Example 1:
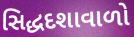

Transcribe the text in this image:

સિદ્ધદશાવાળો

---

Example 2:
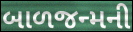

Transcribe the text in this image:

બાળજન્મની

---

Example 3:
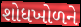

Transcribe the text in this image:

શોધખોળને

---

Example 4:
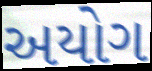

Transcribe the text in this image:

અયોગ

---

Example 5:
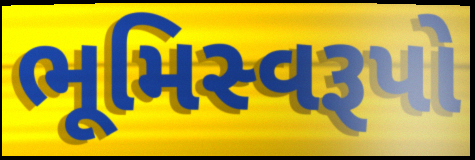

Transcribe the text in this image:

ભૂમિસ્વરૂપો